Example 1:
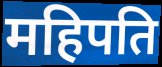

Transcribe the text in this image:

महिपति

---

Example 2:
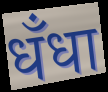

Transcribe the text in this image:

धँधा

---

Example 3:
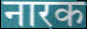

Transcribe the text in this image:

नारक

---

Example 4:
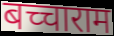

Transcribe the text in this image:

बच्चाराम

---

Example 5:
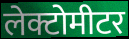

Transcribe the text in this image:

लेक्टोमीटर